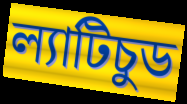
ল্যাটিচুড